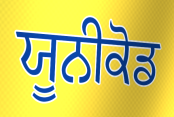
ਯੂਨੀਕੋਡ